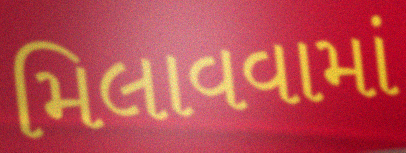
મિલાવવામાં